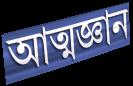
আত্মজ্ঞান